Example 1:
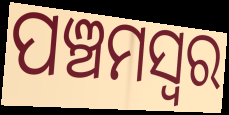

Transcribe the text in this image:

ପଞ୍ଚମସ୍ଵର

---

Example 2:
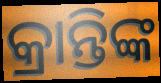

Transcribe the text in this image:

କ୍ରାନ୍ତିଙ୍କ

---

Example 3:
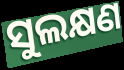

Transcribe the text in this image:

ସୁଲକ୍ଷଣ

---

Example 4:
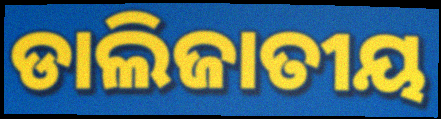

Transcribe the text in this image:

ଡାଲିଜାତୀୟ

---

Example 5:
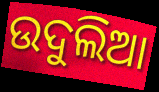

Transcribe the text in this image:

ଉଦୁଲିଆ